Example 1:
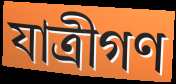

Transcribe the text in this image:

যাত্রীগণ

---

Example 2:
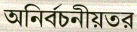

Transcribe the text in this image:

অনির্বচনীয়তর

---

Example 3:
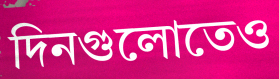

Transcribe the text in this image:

দিনগুলোতেও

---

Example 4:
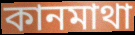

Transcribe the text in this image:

কানমাথা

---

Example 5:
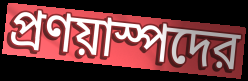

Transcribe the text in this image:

প্রণয়াস্পদের